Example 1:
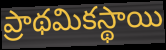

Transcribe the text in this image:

ప్రాథమికస్థాయి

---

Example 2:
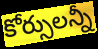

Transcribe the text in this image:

కోర్సులన్నీ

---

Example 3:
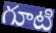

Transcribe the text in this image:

గూటి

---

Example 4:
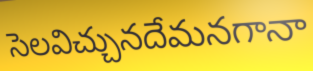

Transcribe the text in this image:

సెలవిచ్చునదేమనగానా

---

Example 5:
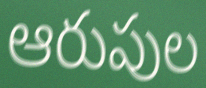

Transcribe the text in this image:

ఆరుపుల